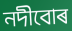
নদীবোৰ